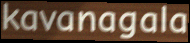
kavanagala